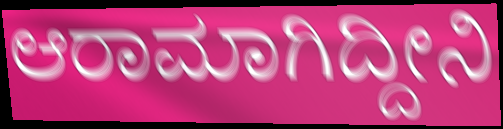
ಆರಾಮಾಗಿದ್ದೀನಿ